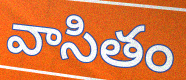
వాసితం